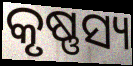
କୃଷ୍ଣସ୍ୟ